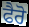
ਫੈਰੋ